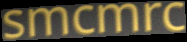
smcmrc